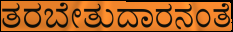
ತರಬೇತುದಾರನಂತೆ